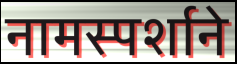
नामस्पर्शाने